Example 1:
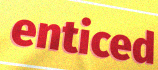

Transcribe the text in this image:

enticed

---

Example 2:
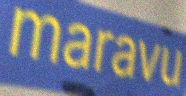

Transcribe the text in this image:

maravu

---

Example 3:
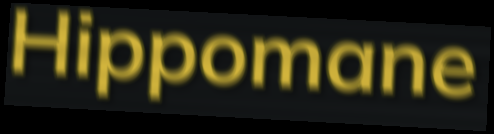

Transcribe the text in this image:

Hippomane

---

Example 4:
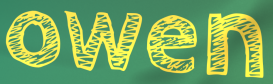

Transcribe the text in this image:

owen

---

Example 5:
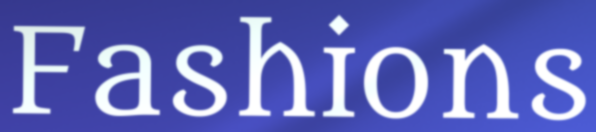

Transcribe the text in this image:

Fashions